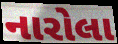
નારોલા